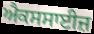
ਐਕਸਸਾਈਜ਼